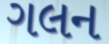
ગલન